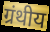
ग्रंथीय